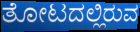
ತೋಟದಲ್ಲಿರುವ